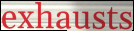
exhausts